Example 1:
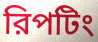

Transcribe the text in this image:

রিপটিং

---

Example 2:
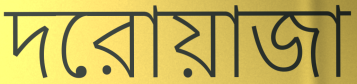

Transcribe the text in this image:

দরোয়াজা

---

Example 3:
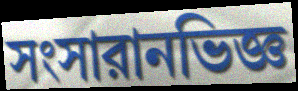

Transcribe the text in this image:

সংসারানভিজ্ঞ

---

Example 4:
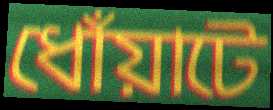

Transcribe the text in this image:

ধোঁয়াটে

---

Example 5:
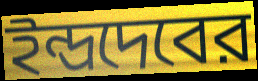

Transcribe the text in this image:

ইন্দ্রদেবের